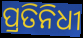
ପ୍ରତିନିଧୀ